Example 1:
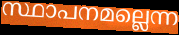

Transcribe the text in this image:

സ്ഥാപനമല്ലെന്ന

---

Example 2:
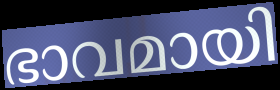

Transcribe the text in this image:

ഭാവമായി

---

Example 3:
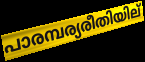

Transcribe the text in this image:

പാരമ്പര്യരീതിയില്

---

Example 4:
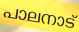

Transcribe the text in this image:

പാലനാട്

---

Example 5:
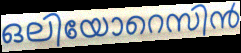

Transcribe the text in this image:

ഒലിയോറെസിൻ